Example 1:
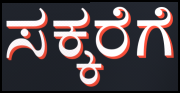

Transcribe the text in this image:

ಸಕ್ಕರೆಗೆ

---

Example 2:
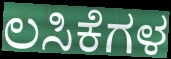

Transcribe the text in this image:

ಲಸಿಕೆಗಳ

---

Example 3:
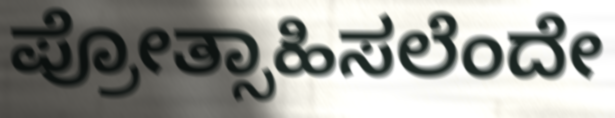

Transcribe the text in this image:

ಪ್ರೋತ್ಸಾಹಿಸಲೆಂದೇ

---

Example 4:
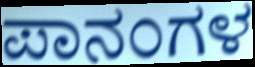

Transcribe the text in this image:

ಪಾನಂಗಳ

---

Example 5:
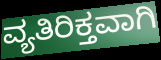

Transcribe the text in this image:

ವ್ಯತಿರಿಕ್ತವಾಗಿ